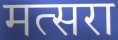
मत्सरा